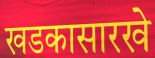
खडकासारखे